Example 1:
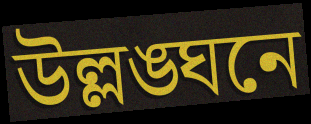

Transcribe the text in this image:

উল্লঙ্ঘনে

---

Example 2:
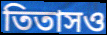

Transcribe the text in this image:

তিতাসও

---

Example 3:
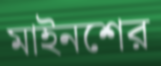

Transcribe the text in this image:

মাইনশের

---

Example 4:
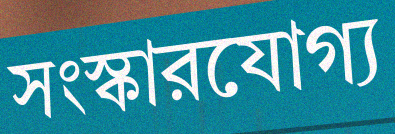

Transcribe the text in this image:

সংস্কারযোগ্য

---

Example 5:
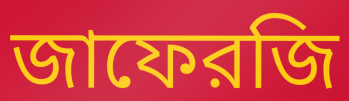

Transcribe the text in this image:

জাফেরজি